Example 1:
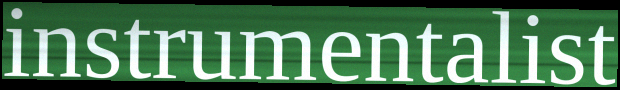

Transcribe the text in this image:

instrumentalist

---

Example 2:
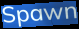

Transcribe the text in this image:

Spawn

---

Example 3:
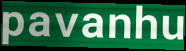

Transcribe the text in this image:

pavanhu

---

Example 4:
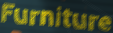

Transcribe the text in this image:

Furniture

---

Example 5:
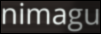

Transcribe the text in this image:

nimagu